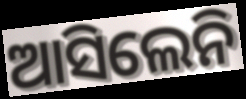
ଆସିଲେନି